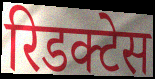
रिडक्टेस